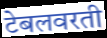
टेबलवरती